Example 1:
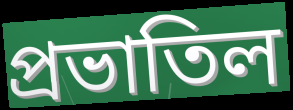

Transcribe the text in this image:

প্রভাতিল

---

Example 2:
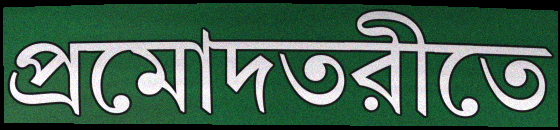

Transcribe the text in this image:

প্রমোদতরীতে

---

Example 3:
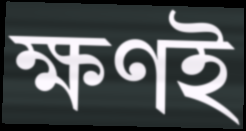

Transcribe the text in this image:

ক্ষণই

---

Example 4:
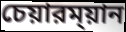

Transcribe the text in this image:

চেয়ারম্য়ান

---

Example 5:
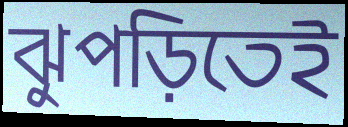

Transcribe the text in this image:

ঝুপড়িতেই